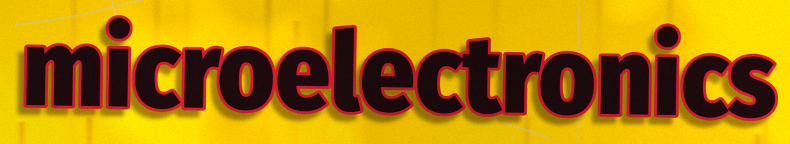
microelectronics